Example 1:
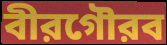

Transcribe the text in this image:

বীরগৌরব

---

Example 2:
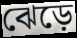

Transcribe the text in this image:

ঝেড়ে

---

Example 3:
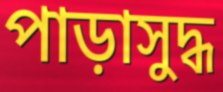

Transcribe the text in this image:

পাড়াসুদ্ধ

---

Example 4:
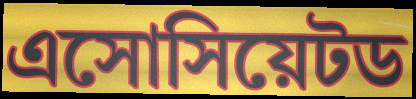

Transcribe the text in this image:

এসোসিয়েটড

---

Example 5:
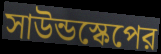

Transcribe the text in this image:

সাউন্ডস্কেপের